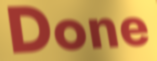
Done